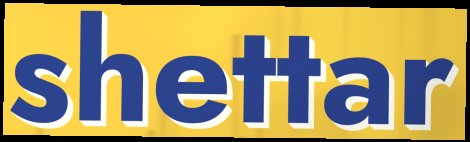
shettar